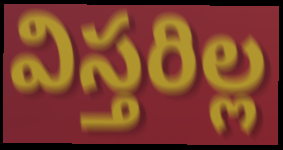
విస్తరిల్ల